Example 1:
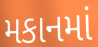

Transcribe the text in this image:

મકાનમાં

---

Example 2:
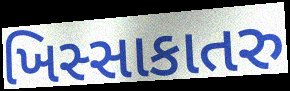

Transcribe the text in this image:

ખિસ્સાકાતરુ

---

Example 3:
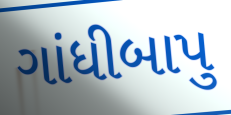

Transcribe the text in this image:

ગાંધીબાપુ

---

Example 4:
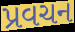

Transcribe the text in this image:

પ્રવચન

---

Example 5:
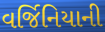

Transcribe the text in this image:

વર્જિનિયાની